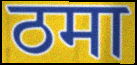
ठमा